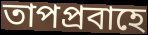
তাপপ্রবাহে